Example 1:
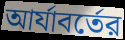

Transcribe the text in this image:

আর্যাবর্তের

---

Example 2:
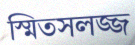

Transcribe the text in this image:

স্মিতসলজ্জ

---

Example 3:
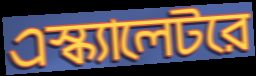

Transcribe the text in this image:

এস্ক্যালেটরে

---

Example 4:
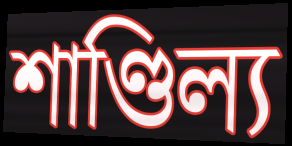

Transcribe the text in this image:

শাণ্ডিল্য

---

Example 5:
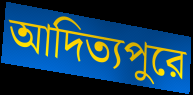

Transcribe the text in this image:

আদিত্যপুরে